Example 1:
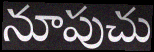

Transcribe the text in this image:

నూపుచు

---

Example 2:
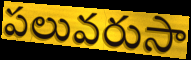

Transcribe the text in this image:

పలువరుసా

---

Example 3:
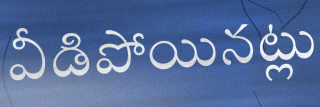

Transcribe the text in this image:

వీడిపోయినట్లు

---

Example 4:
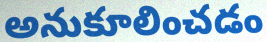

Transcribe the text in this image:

అనుకూలించడం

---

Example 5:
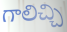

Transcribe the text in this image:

గాలిచ్చి